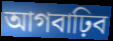
আগবাঢ়িব